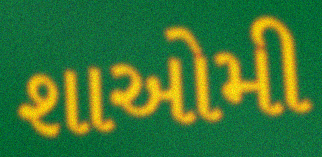
શાઓમી